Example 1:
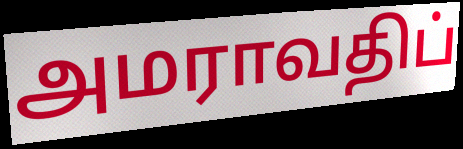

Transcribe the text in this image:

அமராவதிப்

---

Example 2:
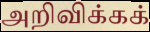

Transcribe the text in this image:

அறிவிக்கக்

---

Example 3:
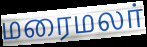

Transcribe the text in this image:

மரைமலர்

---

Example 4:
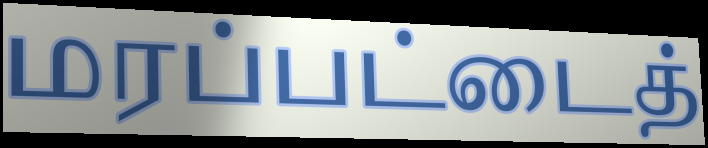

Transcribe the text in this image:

மரப்பட்டைத்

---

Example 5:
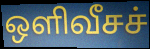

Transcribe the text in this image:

ஒளிவீசச்